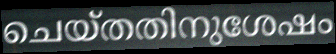
ചെയ്തതിനുശേഷം